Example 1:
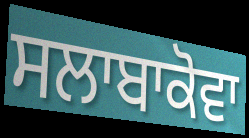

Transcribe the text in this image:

ਸਲਾਬਾਕੋਵਾ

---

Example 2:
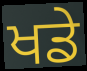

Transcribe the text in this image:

ਖਡੇ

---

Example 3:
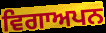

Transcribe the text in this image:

ਵਿਗਾਅਪਨ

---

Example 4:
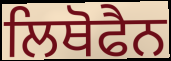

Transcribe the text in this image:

ਲਿਥੋਫੈਨ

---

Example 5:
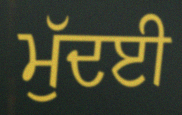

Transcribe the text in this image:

ਮੁੱਦਈ